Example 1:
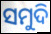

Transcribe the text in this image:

ସମୁଦି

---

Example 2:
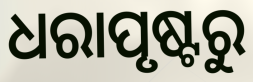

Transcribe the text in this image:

ଧରାପୃଷ୍ଟରୁ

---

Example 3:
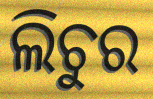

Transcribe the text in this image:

ଲିଚୁର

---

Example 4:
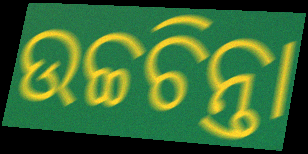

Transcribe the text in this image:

ଉଚ୍ଚଚିନ୍ତା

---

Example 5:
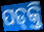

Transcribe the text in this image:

ପଡ୍‌କ୍ତି